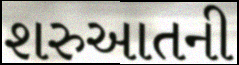
શરુઆતની